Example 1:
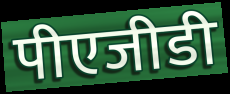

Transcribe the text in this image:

पीएजीडी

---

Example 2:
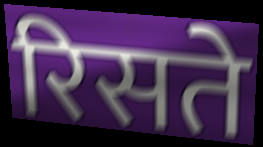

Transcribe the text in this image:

रिसते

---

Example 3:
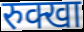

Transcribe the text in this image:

रुक्खा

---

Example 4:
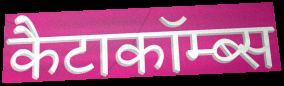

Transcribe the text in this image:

कैटाकॉम्ब्स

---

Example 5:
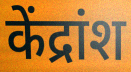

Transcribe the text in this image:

केंद्रांश